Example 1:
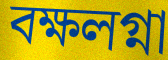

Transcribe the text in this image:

বক্ষলগ্না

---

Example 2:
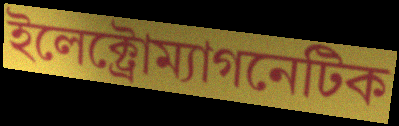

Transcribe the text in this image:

ইলেক্ট্রোম্যাগনেটিক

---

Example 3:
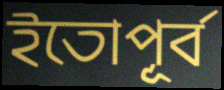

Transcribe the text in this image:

ইতোপূর্ব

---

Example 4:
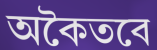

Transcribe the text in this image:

অকৈতবে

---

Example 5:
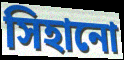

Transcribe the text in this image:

সিহানো